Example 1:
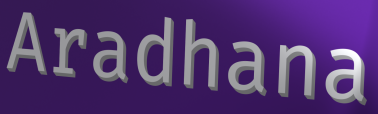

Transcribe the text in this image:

Aradhana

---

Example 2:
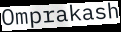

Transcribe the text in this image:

Omprakash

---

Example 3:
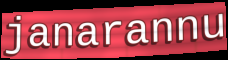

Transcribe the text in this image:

janarannu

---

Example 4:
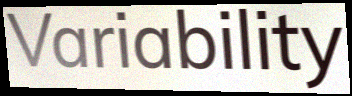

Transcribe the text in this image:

Variability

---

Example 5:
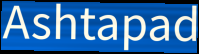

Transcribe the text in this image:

Ashtapad